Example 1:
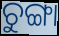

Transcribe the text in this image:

ଚୁଙ୍ଗା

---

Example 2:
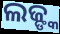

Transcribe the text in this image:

ଲଜ୍ଙ୍କ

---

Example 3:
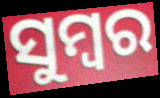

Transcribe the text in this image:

ସୁମ୍ବର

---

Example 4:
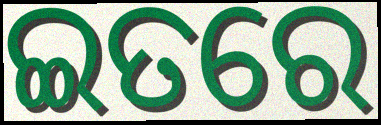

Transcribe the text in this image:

ଇତରେ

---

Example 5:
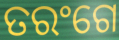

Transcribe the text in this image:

ତରଂଗେ